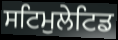
ਸਟਿਮੁਲੇਟਿਡ